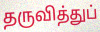
தருவித்துப்